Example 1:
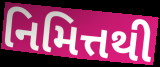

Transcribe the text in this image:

નિમિત્તથી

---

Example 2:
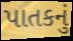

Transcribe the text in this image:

પાતકનું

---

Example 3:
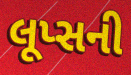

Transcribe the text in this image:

લૂપ્સની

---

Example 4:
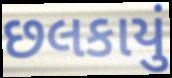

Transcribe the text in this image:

છલકાયું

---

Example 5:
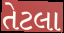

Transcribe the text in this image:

તેટલા